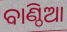
ବାଣ୍ଠିଆ